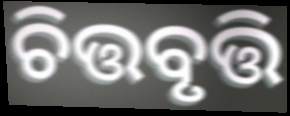
ଚିତ୍ତବୃତ୍ତି